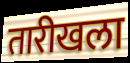
तारीखला